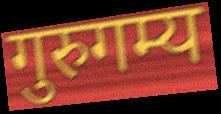
गुरुगम्य